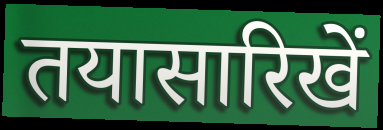
तयासारिखें